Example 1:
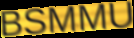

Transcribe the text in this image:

BSMMU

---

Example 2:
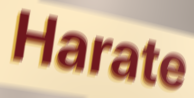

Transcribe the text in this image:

Harate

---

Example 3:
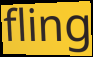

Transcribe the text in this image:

fling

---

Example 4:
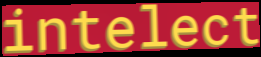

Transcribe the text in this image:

intelect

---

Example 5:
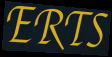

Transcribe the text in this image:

ERTS